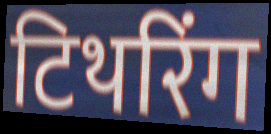
टिथरिंग